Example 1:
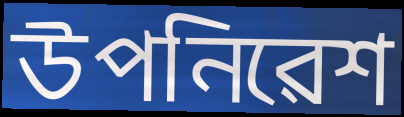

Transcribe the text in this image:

উপনিৱেশ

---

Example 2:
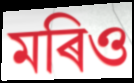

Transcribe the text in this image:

মৰিও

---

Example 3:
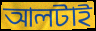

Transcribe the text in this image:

আলটাই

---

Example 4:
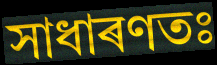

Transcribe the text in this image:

সাধাৰণতঃ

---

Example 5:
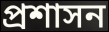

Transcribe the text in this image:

প্ৰশাসন